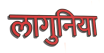
लागुनिया